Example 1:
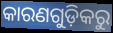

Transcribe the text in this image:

କାରଣଗୁଡ଼ିକରୁ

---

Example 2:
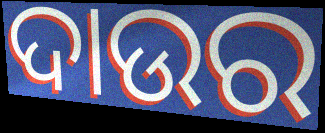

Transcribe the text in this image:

ଦାଉର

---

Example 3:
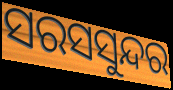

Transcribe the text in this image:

ସରସସୁନ୍ଦର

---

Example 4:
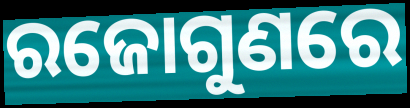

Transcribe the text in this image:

ରଜୋଗୁଣରେ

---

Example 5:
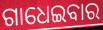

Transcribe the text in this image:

ଗାଧେଇବାର